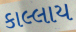
કાલ્લાય